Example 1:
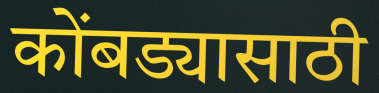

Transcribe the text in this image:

कोंबड्यासाठी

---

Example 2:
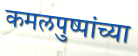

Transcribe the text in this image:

कमलपुष्पांच्या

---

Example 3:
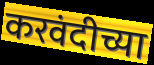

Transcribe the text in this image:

करवंदीच्या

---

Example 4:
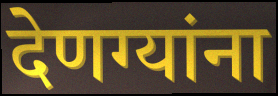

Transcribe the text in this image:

देणग्यांना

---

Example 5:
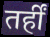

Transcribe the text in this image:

तर्हीं